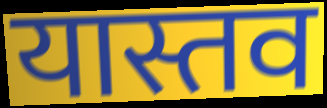
यास्तव